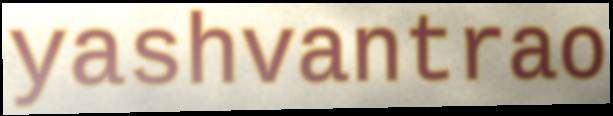
yashvantrao